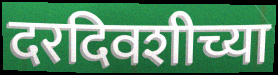
दरदिवशीच्या